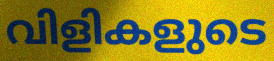
വിളികളുടെ